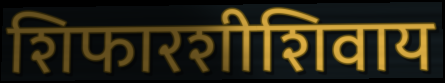
शिफारशीशिवाय